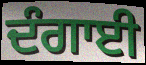
ਦੰਗਾਈ